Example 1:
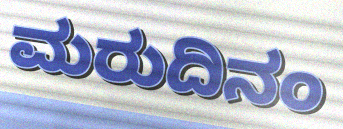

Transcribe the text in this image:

ಮರುದಿನಂ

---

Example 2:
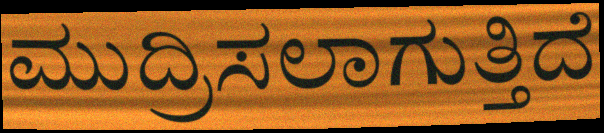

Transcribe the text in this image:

ಮುದ್ರಿಸಲಾಗುತ್ತಿದೆ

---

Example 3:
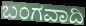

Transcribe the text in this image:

ಬಂಗವಾದಿ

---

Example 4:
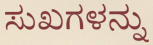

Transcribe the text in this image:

ಸುಖಗಳನ್ನು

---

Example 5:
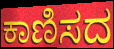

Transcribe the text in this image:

ಕಾಣಿಸದ